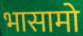
भासामो